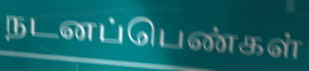
நடனப்பெண்கள்